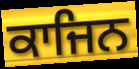
ਕਾਜਿਨ